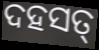
ଦହସତ୍